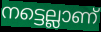
നട്ടെല്ലാണ്